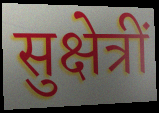
सुक्षेत्रीं